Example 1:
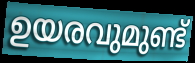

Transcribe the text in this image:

ഉയരവുമുണ്ട്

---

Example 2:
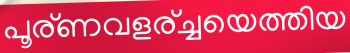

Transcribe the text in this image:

പൂര്ണവളര്ച്ചയെത്തിയ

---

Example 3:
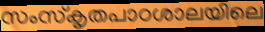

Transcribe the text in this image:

സംസ്കൃതപാഠശാലയിലെ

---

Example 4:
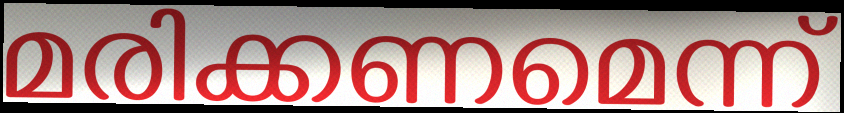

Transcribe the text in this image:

മരിക്കണമെന്ന്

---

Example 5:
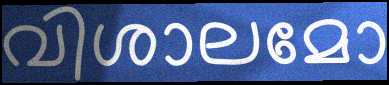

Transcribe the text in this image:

വിശാലമോ